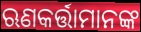
ଋଣକର୍ତ୍ତାମାନଙ୍କ